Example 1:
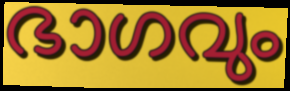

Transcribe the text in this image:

ഭാഗവും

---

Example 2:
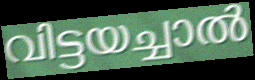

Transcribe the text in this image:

വിട്ടയച്ചാൽ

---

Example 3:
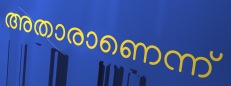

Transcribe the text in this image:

അതാരാണെന്ന്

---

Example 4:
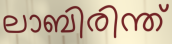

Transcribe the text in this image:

ലാബിരിന്ത്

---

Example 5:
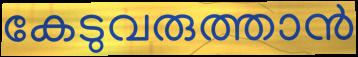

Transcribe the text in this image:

കേടുവരുത്താൻ